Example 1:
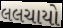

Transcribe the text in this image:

લલચાયો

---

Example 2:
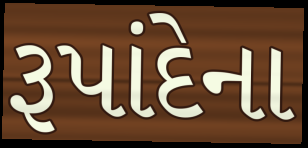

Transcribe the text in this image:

રૂપાંદેના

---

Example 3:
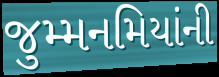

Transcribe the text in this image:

જુમ્મનમિયાંની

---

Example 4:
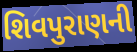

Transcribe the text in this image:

શિવપુરાણની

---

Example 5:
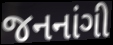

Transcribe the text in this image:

જનનાંગી